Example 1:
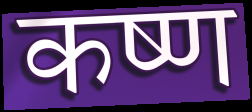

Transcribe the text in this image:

कष्ण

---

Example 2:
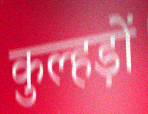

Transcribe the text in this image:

कुल्हड़ों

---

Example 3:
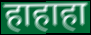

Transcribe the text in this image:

हाहाहा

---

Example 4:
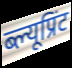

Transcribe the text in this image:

ब्ल्यूप्रिंट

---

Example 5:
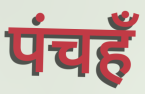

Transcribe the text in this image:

पंचहँ